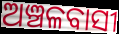
ଅଞ୍ଚଳବାସୀ